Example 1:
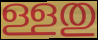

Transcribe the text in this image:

ള്ളതു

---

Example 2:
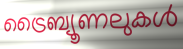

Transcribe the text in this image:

ട്രൈബ്യൂണലുകൾ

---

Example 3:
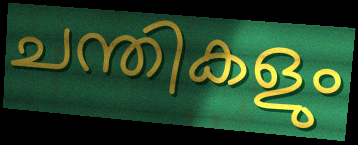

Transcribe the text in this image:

ചന്തികളും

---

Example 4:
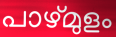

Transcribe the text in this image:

പാഴ്മുളം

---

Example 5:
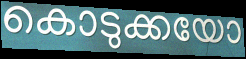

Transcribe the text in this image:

കൊടുക്കയോ